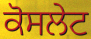
ਕੋਸਲੇਟ